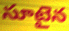
సూటైన